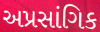
અપ્રસાંગિક